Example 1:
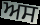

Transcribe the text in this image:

ਅਸ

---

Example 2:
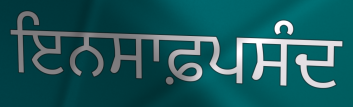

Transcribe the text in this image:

ਇਨਸਾਫ਼ਪਸੰਦ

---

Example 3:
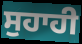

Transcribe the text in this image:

ਸੁਹਾਹੀ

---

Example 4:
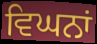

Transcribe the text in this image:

ਵਿਘਨਾਂ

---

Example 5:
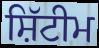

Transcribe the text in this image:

ਸ਼ਿੱਟੀਮ